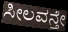
ಸೀಲವನ್ತೇ